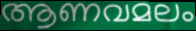
ആണവമലം